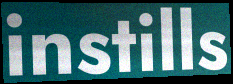
instills